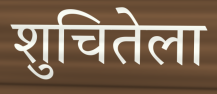
शुचितेला